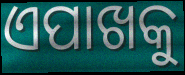
ଏପାଖକୁ